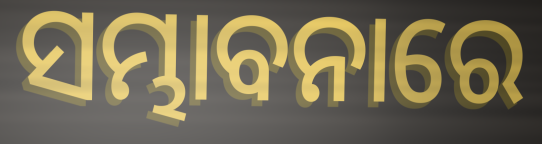
ସମ୍ଭାବନାରେ